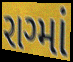
રાગ્માં